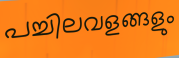
പച്ചിലവളങ്ങളും